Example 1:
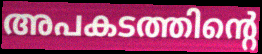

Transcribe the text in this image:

അപകടത്തിന്റെ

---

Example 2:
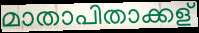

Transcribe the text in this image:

മാതാപിതാക്കള്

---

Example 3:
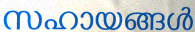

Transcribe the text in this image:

സഹായങ്ങൾ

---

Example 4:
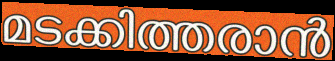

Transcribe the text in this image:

മടക്കിത്തരാൻ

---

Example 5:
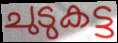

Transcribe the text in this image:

ചുടുകട്ട